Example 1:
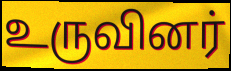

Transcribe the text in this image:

உருவினர்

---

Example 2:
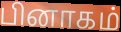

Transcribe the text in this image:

பினாகம்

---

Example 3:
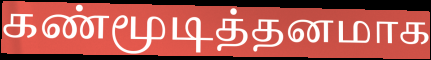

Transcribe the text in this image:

கண்மூடித்தனமாக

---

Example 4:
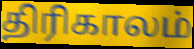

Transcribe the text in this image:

திரிகாலம்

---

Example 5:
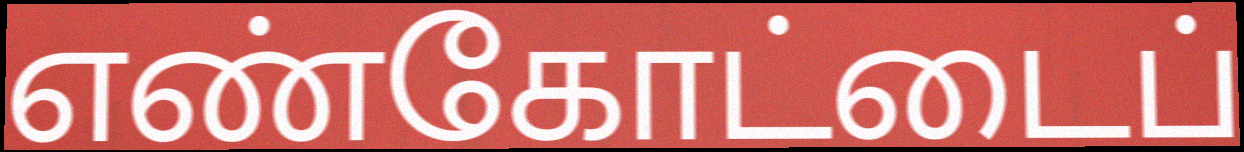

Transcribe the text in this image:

எண்கோட்டைப்